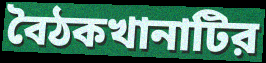
বৈঠকখানাটির